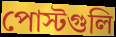
পোস্টগুলি